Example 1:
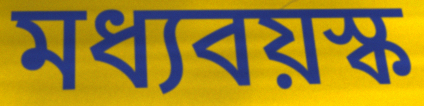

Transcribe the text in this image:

মধ্যবয়স্ক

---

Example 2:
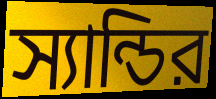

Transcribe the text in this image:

স্যান্ডির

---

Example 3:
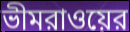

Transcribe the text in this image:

ভীমরাওয়ের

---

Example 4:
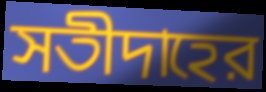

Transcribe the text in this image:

সতীদাহের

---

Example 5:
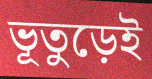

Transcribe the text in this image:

ভূতুড়েই